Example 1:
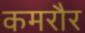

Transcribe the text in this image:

कमरौर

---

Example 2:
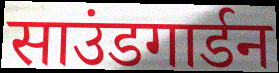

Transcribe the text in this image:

साउंडगार्डन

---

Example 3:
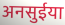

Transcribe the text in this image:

अनसुईया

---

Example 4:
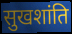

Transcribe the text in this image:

सुखशांति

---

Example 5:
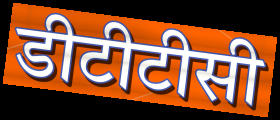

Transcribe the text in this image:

डीटीटीसी